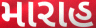
મારાહ